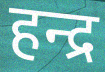
हन्द्र